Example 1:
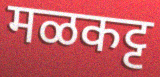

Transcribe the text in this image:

मळकट्ट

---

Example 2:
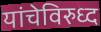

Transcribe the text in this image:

यांचेविरुध्द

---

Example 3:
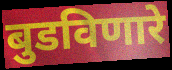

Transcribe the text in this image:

बुडविणारे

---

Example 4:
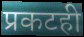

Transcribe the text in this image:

प्रकटही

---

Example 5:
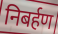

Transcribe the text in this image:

निबर्हण